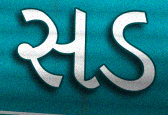
સડ